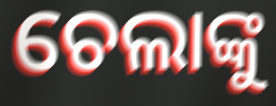
ଚେଲାଙ୍କୁ